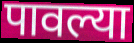
पावल्या